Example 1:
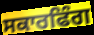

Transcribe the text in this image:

ਸਕਾਰਫਿੰਗ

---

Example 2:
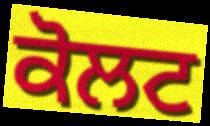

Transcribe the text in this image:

ਕੋਲਟ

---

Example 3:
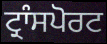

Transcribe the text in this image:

ਟ੍ਰਾੰਸਪੋਰਟ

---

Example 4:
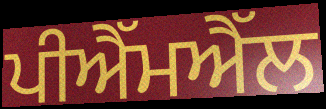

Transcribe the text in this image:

ਪੀਐੱਮਐੱਲ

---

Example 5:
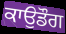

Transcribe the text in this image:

ਕਾਉਡੌਗ